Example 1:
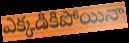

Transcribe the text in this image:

ఎక్కడికిపోయినా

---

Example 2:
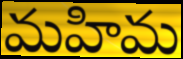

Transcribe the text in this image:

మహిమ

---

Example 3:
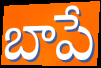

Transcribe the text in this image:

బాపే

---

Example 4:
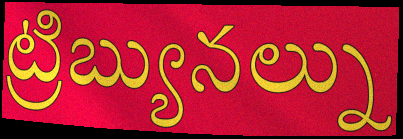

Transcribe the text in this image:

ట్రిబ్యునల్ను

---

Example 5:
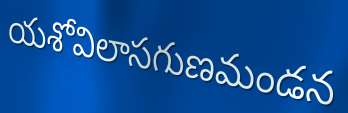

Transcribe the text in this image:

యశోవిలాసగుణమండన